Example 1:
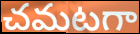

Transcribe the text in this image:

చమటగా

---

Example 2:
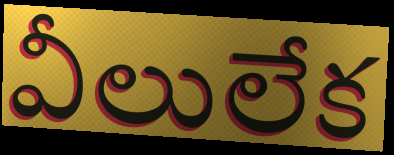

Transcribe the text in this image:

వీలులేక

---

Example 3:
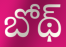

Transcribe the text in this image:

బోథ్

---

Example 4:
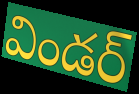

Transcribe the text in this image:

విండర్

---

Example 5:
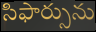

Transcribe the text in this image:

సిఫార్సును